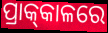
ପ୍ରାକ୍‍କାଳରେ